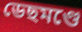
ডেছমণ্ডে